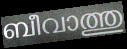
ബീവാത്തു